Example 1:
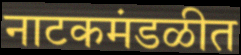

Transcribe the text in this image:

नाटकमंडळीत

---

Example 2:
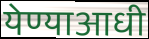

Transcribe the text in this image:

येण्याआधी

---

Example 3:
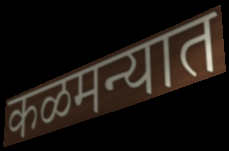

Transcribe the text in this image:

कळमन्यात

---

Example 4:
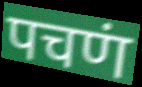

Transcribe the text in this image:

पचणं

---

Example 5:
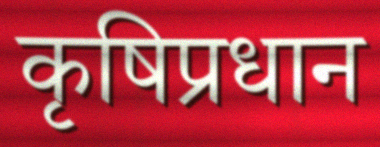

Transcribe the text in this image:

कृषिप्रधान